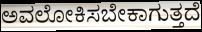
ಅವಲೋಕಿಸಬೇಕಾಗುತ್ತದೆ